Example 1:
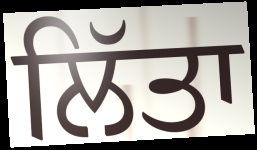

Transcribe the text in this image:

ਲਿੱਤਾ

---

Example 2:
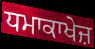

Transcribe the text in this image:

ਧਮਾਕਾਖੇਜ਼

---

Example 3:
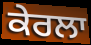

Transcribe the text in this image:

ਕੇਰਲਾ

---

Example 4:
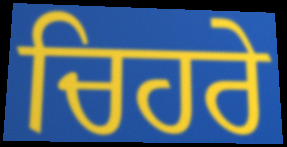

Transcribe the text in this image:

ਚਿਹਰੇ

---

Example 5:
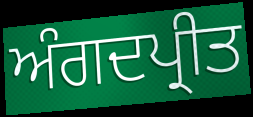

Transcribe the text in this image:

ਅੰਗਦਪ੍ਰੀਤ